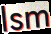
Ism